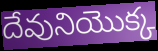
దేవునియొక్క